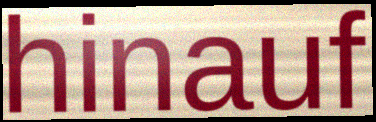
hinauf